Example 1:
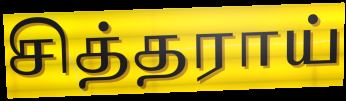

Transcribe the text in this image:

சித்தராய்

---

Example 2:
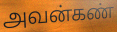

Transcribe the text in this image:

அவன்கண்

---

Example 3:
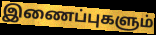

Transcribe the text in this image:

இணைப்புகளும்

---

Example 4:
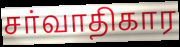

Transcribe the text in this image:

சர்வாதிகார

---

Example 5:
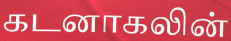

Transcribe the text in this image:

கடனாகலின்